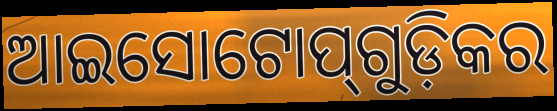
ଆଇସୋଟୋପ୍‌ଗୁଡ଼ିକର